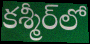
కశ్మీర్‌లో